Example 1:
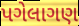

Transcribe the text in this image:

પગેલાગણ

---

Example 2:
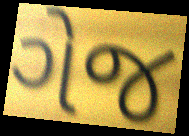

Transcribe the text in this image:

ગેજ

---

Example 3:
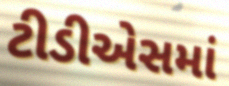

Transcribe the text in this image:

ટીડીએસમાં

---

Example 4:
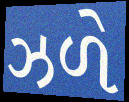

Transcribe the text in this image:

ઝળે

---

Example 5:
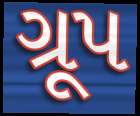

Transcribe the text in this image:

ગ્રૂપ